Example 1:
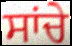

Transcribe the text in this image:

ਸਾਂਚੇ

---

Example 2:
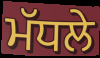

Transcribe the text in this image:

ਮੱਧਲੇ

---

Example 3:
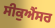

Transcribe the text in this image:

ਸੀਕੁਐਂਸਰ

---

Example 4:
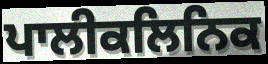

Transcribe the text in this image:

ਪਾਲੀਕਲਿਨਿਕ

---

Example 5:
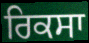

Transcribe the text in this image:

ਰਿਕਸਾ